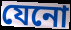
যেনো